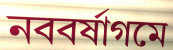
নববর্ষাগমে